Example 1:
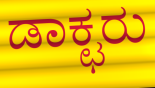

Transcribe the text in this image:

ಡಾಕ್ಟರು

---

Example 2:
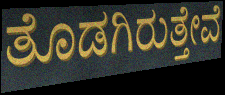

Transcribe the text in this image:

ತೊಡಗಿರುತ್ತೇವೆ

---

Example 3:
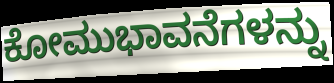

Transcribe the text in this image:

ಕೋಮುಭಾವನೆಗಳನ್ನು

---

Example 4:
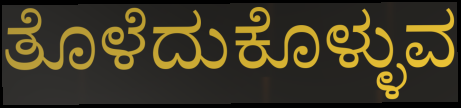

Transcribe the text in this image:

ತೊಳೆದುಕೊಳ್ಳುವ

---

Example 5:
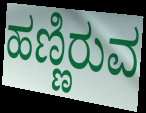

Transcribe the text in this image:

ಹಣ್ಣಿರುವ